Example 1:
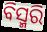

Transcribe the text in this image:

ବିସ୍ମରି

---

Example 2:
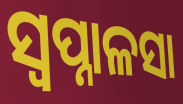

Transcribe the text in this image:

ସ୍ୱପ୍ନାଳସା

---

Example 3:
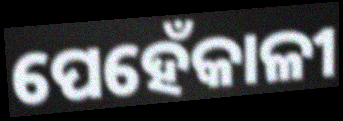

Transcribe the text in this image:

ପେହେଁକାଳୀ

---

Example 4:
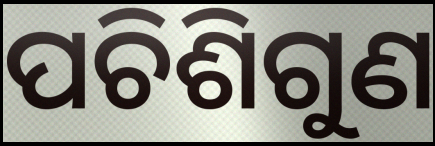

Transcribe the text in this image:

ପଚିଶିଗୁଣ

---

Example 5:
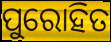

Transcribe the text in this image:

ପୁରୋହିତ